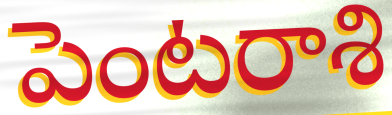
పెంటరాశి